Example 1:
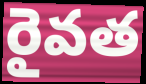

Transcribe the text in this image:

రైవత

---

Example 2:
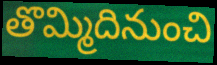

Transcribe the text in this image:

తొమ్మిదినుంచి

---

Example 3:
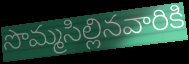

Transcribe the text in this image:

సొమ్మసిల్లినవారికి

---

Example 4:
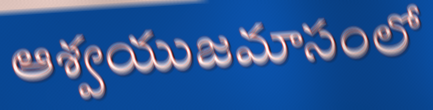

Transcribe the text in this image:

ఆశ్వయుజమాసంలో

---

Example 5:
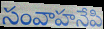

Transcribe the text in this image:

సంవాహనేపి